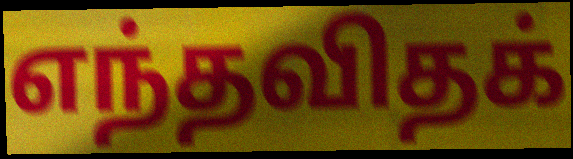
எந்தவிதக்